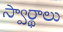
స్వార్థాలు